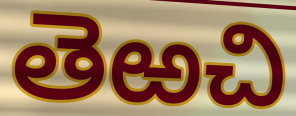
తెఱచి